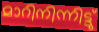
മാറിനിന്നിട്ടു്